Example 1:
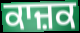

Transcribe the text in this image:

ਕਾਜ਼ਕ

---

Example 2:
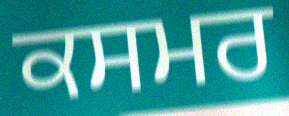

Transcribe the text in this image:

ਕਸਮਰ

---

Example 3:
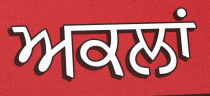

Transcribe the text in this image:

ਅਕਲਾਂ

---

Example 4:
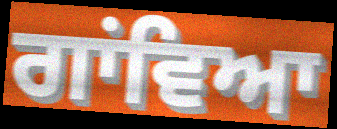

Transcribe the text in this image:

ਗਾਂਵਿਆ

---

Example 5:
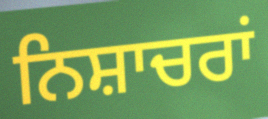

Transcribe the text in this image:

ਨਿਸ਼ਾਚਰਾਂ